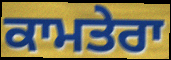
ਕਾਮਤੇਰਾ